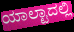
ಯಾಲ್ಟಾದಲ್ಲಿ